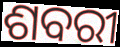
ଶବରୀ